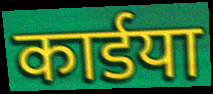
कार्डया